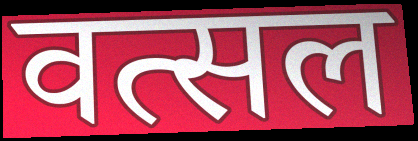
वत्सल